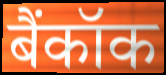
बैंकॉक